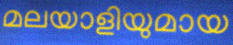
മലയാളിയുമായ